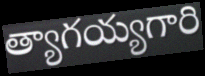
త్యాగయ్యగారి